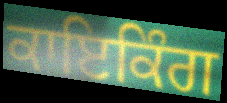
ਕਾਇਕਿੰਗ